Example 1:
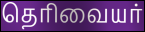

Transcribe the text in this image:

தெரிவையர்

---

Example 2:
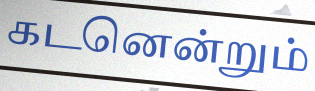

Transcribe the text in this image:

கடனென்றும்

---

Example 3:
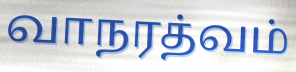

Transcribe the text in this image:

வாநரத்வம்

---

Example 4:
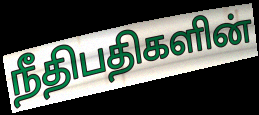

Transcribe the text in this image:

நீதிபதிகளின்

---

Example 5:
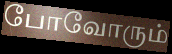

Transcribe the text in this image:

போவோரும்